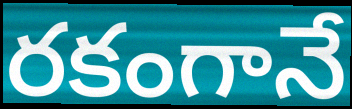
రకంగానే